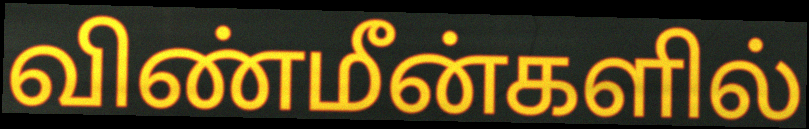
விண்மீன்களில்